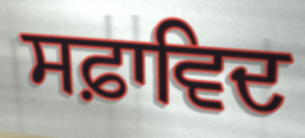
ਸਫ਼ਾਵਿਦ